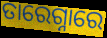
ତାରେଗ୍ନାରେ